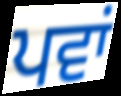
ਪਵਾਂ